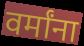
वर्मांना